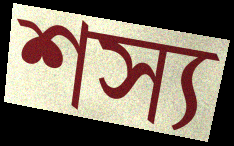
শস্য